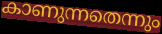
കാണുന്നതെന്നും